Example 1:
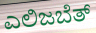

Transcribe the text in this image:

ಎಲಿಜಬೆತ್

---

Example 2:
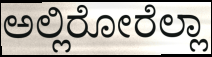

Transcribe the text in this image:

ಅಲ್ಲಿರೋರೆಲ್ಲಾ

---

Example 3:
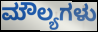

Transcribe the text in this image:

ಮೌಲ್ಯಗಳು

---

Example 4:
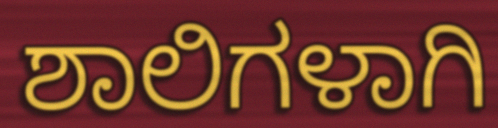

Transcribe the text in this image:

ಶಾಲಿಗಳಾಗಿ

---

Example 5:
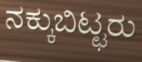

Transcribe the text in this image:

ನಕ್ಕುಬಿಟ್ಟರು